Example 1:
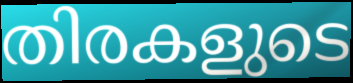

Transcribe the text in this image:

തിരകളുടെ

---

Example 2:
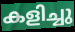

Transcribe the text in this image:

കളിച്ചു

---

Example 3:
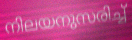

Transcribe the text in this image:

നിലയനുസരിച്ച്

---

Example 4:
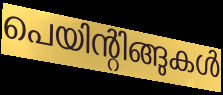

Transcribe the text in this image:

പെയിന്റിങ്ങുകൾ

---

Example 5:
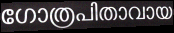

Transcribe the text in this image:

ഗോത്രപിതാവായ